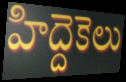
హిద్దెకెలు